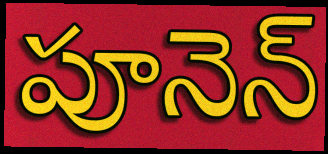
పూనెన్